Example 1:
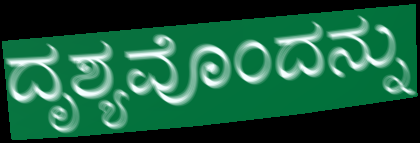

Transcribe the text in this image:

ದೃಶ್ಯವೊಂದನ್ನು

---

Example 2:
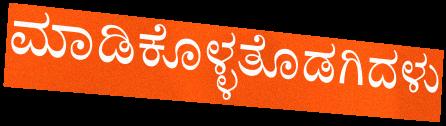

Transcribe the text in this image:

ಮಾಡಿಕೊಳ್ಳತೊಡಗಿದಳು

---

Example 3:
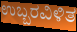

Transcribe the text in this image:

ಉಬ್ಬರವಿಳಿತ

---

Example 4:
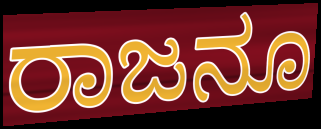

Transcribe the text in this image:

ರಾಜನೂ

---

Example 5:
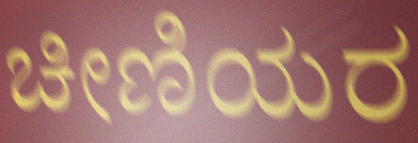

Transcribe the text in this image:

ಚೀಣಿಯರ